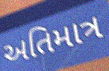
અતિમાત્ર